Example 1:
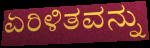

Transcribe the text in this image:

ಏರಿಳಿತವನ್ನು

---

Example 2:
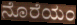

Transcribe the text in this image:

ನೊರೆಯಂ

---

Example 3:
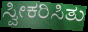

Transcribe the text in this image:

ಸ್ವೀಕರಿಸಿತು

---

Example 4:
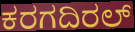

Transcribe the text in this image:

ಕರಗದಿರಲ್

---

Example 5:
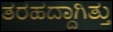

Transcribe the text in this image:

ತರಹದ್ದಾಗಿತ್ತು